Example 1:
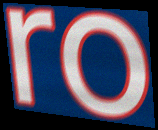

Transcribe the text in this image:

ro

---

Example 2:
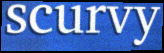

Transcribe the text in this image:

scurvy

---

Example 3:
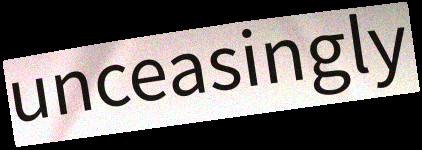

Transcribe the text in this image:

unceasingly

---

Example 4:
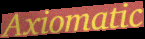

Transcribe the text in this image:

Axiomatic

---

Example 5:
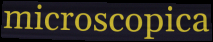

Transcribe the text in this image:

microscopica